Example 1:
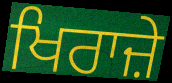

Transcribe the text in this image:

ਖਿਰਾਜ਼ੇ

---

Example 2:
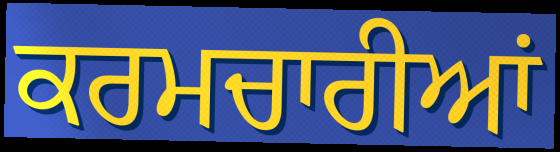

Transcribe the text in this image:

ਕਰਮਚਾਰੀਆਂ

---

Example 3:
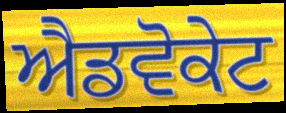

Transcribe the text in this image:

ਐਡਵੋਕੇਟ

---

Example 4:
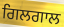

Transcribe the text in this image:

ਗਿਲਗਾਲ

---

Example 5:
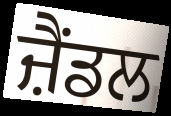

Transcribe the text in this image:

ਜ਼ੈਂਡਲ